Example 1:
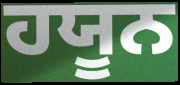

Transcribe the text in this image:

ਹਯੂਨ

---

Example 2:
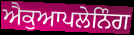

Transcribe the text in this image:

ਐਕੁਆਪਲੇਨਿੰਗ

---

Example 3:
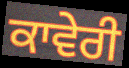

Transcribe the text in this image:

ਕਾਵੇਰੀ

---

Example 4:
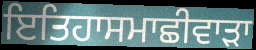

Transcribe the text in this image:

ਇਤਿਹਾਸਮਾਛੀਵਾੜਾ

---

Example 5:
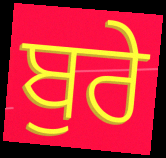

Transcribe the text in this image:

ਬੁਰੇ